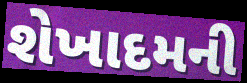
શેખાદમની